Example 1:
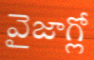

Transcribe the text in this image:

వైజాగ్లో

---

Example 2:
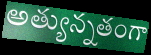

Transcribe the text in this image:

అత్యున్నతంగా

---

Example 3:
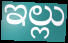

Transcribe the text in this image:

ఇల్లు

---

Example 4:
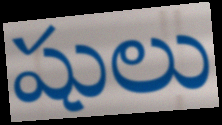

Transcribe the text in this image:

షులు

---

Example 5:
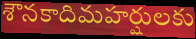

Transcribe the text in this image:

శౌనకాదిమహర్షులకు